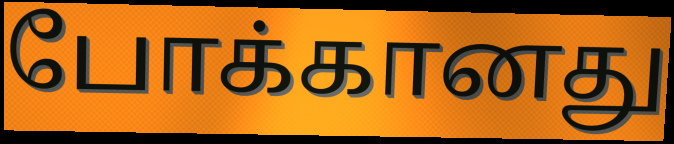
போக்கானது